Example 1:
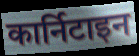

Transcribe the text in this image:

कार्निटाइन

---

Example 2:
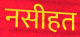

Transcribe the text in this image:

नसीहत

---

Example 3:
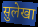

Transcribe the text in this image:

सुलेखा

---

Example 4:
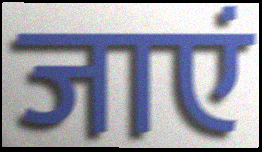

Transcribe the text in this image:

जाएं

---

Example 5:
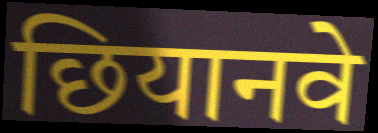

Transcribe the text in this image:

छियानवे